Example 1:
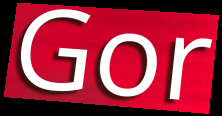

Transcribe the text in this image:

Gor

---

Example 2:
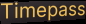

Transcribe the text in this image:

Timepass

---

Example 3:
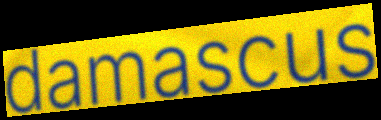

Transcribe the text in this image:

damascus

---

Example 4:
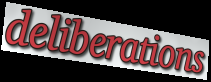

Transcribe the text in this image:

deliberations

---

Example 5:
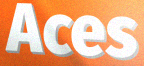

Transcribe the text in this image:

Aces